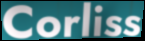
Corliss